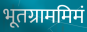
भूतग्राममिमं